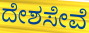
ದೇಶಸೇವೆ